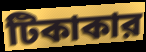
টিকাকার